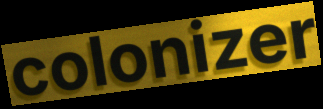
colonizer